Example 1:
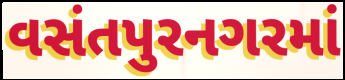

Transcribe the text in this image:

વસંતપુરનગરમાં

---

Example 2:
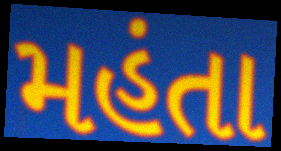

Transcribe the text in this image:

મહંતા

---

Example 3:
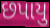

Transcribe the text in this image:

છપાયુ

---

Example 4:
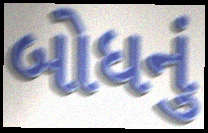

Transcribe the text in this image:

બોધનું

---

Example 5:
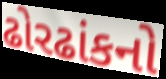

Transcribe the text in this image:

ઢોરઢાંકનો